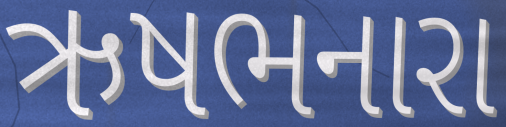
ઋષભનારા